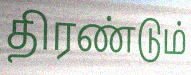
திரண்டும்